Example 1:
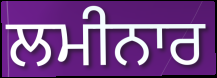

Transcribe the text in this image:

ਲਮੀਨਾਰ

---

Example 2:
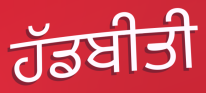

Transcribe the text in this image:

ਹੱਡਬੀਤੀ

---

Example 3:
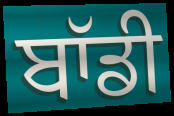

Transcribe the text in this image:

ਬਾੱਡੀ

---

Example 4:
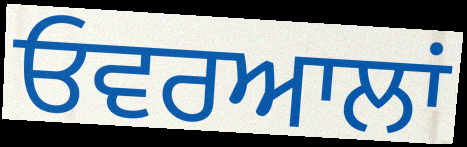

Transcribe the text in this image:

ਓਵਰਆਲਾਂ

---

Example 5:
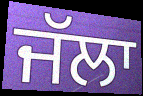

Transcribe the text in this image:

ਜੱਲਾ